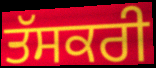
ਤੱਸਕਰੀ